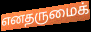
எனதருமைக்